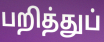
பறித்துப்